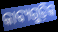
କାବ୍ୟଗୁଡ଼ିକ